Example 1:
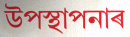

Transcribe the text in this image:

উপস্থাপনাৰ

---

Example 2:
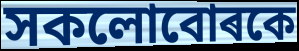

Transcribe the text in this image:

সকলোবোৰকে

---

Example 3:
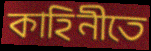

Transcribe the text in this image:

কাহিনীতে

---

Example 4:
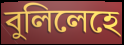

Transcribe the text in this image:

বুলিলেহে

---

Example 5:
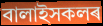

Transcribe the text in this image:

বালাইসকলৰ